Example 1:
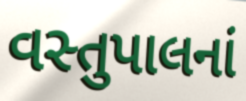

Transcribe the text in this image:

વસ્તુપાલનાં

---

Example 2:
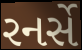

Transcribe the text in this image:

રનર્સે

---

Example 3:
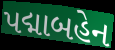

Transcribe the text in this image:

પદ્માબહેન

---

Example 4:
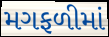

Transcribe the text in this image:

મગફળીમાં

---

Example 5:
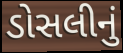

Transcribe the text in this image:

ડોસલીનું